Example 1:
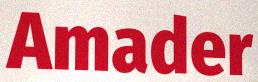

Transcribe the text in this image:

Amader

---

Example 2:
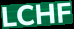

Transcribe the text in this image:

LCHF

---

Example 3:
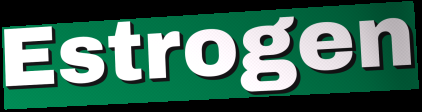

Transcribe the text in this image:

Estrogen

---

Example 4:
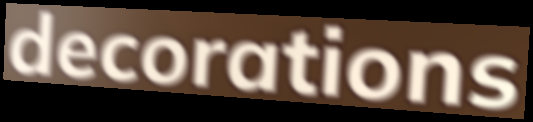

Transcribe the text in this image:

decorations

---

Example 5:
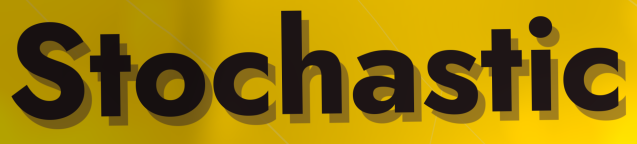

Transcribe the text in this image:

Stochastic